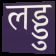
लड्डु